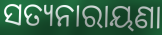
ସତ୍ୟନାରାୟଣା